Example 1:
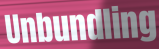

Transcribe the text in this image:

Unbundling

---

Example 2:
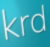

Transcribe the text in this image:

krd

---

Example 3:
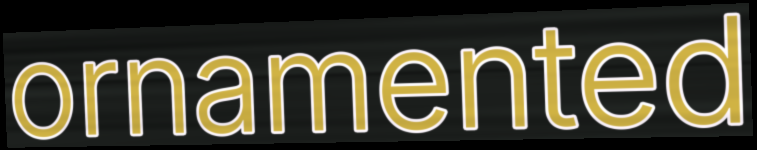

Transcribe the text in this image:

ornamented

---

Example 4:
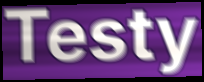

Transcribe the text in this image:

Testy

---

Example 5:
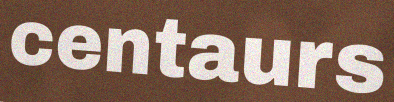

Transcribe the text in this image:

centaurs